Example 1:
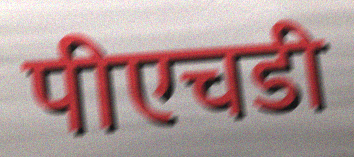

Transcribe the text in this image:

पीएचडी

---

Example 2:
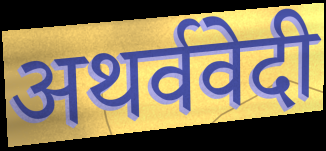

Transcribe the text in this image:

अथर्ववेदी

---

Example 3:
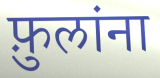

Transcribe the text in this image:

फ़ुलांना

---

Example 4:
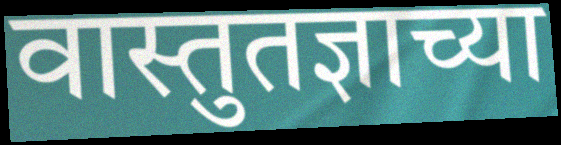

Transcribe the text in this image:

वास्तुतज्ञाच्या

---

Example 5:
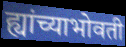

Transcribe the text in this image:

ह्यांच्याभोवती